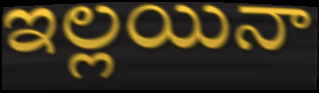
ఇల్లయినా